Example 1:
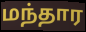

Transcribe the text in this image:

மந்தார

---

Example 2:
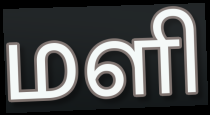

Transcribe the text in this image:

மளி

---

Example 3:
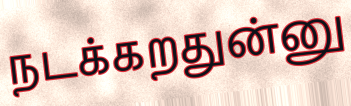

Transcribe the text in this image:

நடக்கறதுன்னு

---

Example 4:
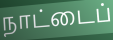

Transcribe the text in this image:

நாட்டைப்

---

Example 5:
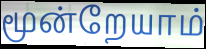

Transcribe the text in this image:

மூன்றேயாம்